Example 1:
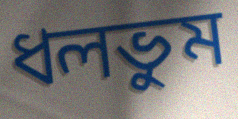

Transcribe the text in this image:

ধলভুম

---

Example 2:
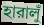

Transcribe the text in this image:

হারালুঁ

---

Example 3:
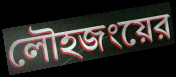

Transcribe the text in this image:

লৌহজংয়ের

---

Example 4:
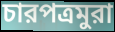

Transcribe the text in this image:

চারপত্রমুরা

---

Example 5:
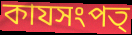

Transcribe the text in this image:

কাযসংপত্